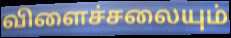
விளைச்சலையும்